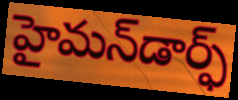
హైమన్‌డార్ఫ్